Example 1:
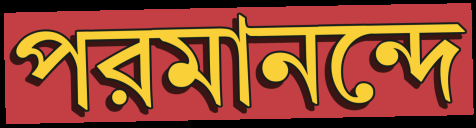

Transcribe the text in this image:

পরমানন্দে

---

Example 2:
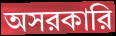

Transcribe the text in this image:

অসরকারি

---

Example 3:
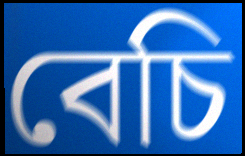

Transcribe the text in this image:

বেচি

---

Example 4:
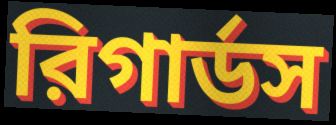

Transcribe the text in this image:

রিগার্ডস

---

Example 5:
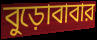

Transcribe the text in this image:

বুড়োবাবার